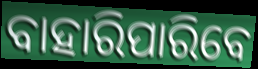
ବାହାରିପାରିବେ